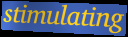
stimulating